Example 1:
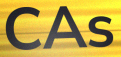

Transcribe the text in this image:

CAs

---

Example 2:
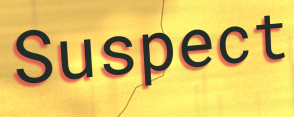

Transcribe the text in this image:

Suspect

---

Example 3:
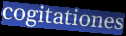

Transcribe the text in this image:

cogitationes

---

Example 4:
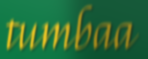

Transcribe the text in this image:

tumbaa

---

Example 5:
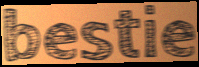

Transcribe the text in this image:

bestie